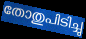
തോതുപിടിച്ചു